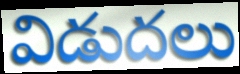
విడుదలు